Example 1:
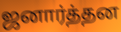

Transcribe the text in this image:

ஜனார்த்தன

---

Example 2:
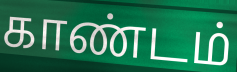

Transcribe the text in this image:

காண்டம்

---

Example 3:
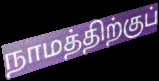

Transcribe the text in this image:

நாமத்திற்குப்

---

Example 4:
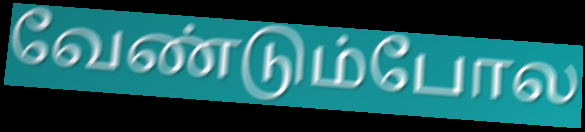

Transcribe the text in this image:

வேண்டும்போல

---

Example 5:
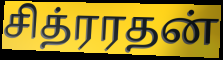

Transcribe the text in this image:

சித்ரரதன்